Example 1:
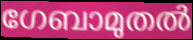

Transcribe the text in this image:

ഗേബാമുതൽ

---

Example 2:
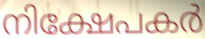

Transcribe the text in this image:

നിക്ഷേപകർ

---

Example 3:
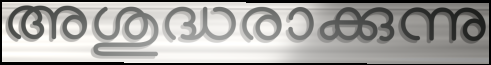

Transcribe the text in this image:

അശുദ്ധരാക്കുന്നു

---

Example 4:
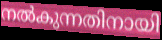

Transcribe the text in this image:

നൽകുന്നതിനായി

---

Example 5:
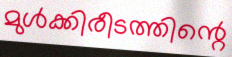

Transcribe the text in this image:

മുൾക്കിരീടത്തിന്റെ